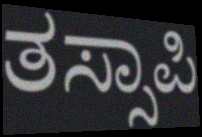
ತಸ್ಸಾಪಿ